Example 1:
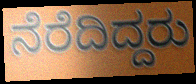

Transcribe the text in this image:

ನೆರೆದಿದ್ದರು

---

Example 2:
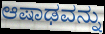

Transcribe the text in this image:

ಆಷಾಢವನ್ನು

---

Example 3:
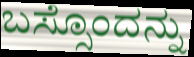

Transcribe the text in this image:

ಬಸ್ಸೊಂದನ್ನು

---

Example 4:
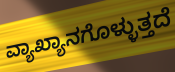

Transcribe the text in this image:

ವ್ಯಾಖ್ಯಾನಗೊಳ್ಳುತ್ತದೆ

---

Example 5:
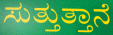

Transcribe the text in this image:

ಸುತ್ತುತ್ತಾನೆ